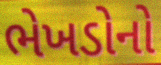
ભેખડોનો